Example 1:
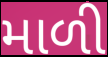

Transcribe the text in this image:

માળી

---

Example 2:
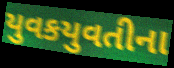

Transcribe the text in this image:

યુવકયુવતીના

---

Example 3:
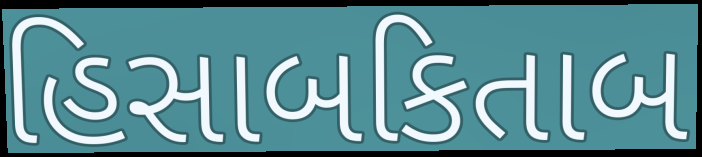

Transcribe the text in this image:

હિસાબકિતાબ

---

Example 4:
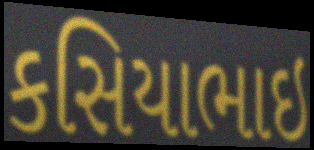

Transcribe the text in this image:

કસિયાભાઇ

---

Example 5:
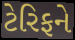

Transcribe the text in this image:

ટેરિફને